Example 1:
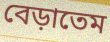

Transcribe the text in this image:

বেড়াতেম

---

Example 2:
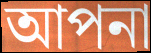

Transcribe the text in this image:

আপনা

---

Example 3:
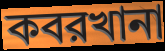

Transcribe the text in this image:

কবরখানা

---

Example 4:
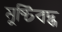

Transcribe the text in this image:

মুষ্টিবদ্ধ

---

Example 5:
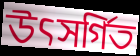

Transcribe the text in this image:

উৎসর্গিত